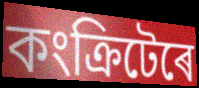
কংক্ৰিটেৰে